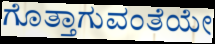
ಗೊತ್ತಾಗುವಂತೆಯೇ